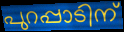
പുറപ്പാടിന്